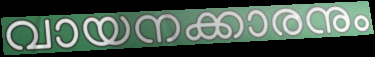
വായനക്കാരനും